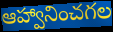
ఆహ్వానించగల